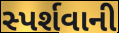
સ્પર્શવાની